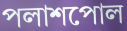
পলাশপোল